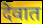
देवात